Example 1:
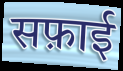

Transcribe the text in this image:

सफ़ाई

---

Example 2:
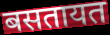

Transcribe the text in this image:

बसतायत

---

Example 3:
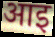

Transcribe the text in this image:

आइ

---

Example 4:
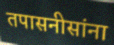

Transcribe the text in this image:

तपासनीसांना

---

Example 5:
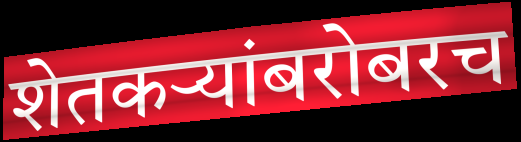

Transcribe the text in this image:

शेतकऱ्यांबरोबरच